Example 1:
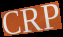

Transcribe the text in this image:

CRP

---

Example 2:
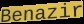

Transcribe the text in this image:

Benazir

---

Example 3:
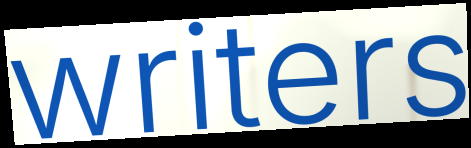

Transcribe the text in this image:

writers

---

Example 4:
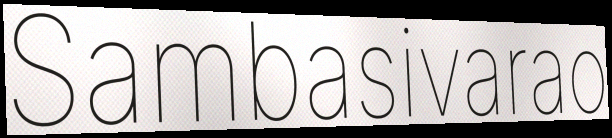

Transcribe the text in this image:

Sambasivarao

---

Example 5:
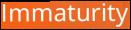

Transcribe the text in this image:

Immaturity